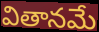
వితానమే